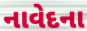
નાવેદના